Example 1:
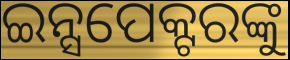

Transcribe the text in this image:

ଇନ୍ସପେକ୍ଟରଙ୍କୁ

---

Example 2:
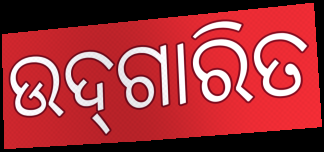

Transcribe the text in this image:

ଉଦ୍‌ଗାରିତ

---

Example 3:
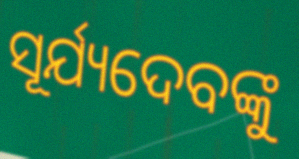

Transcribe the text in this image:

ସୂର୍ଯ୍ୟଦେବଙ୍କୁ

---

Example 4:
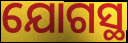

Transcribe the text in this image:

ଯୋଗସ୍ଥ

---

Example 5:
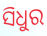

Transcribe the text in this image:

ସିଧୁର